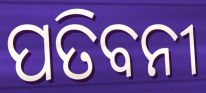
ପତିବନୀ